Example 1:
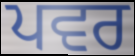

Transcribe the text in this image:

ਪਵਰ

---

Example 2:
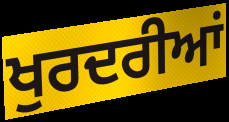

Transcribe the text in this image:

ਖੁਰਦਰੀਆਂ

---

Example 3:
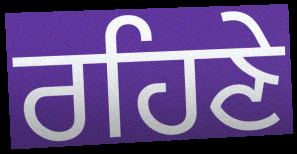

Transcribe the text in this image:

ਰਹਿਣੇ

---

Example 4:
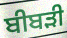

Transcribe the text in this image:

ਬੀਬੜੀ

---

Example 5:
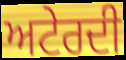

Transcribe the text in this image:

ਅਟੇਰਦੀ